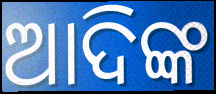
ଆଦିଙ୍କ